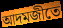
আদমজীতে